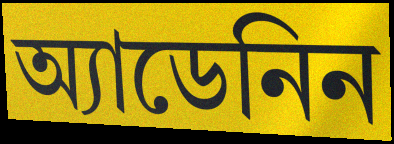
অ্যাডেনিন